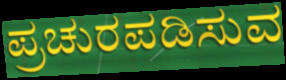
ಪ್ರಚುರಪಡಿಸುವ